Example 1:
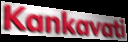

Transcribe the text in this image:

Kankavati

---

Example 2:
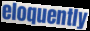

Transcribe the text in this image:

eloquently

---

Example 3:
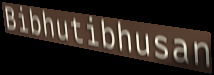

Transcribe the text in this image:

Bibhutibhusan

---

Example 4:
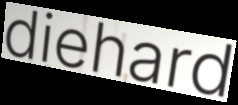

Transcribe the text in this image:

diehard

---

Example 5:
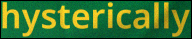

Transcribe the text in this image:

hysterically